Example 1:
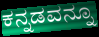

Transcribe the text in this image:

ಕನ್ನಡವನ್ನೂ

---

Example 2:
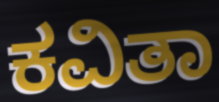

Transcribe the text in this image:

ಕವಿತಾ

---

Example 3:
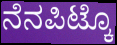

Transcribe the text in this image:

ನೆನಪಿಟ್ಕೊ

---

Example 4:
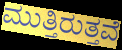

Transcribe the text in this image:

ಮುತ್ತಿರುತ್ತವೆ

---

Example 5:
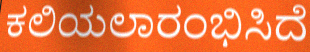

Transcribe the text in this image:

ಕಲಿಯಲಾರಂಭಿಸಿದೆ